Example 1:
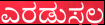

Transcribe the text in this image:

ಎರಡುಸಲ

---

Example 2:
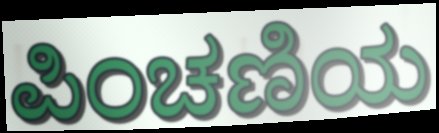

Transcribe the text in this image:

ಪಿಂಚಣಿಯ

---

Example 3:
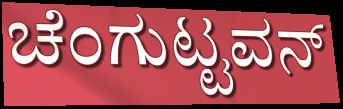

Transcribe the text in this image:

ಚೆಂಗುಟ್ಟವನ್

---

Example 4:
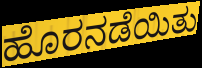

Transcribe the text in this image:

ಹೊರನಡೆಯಿತು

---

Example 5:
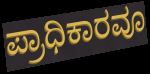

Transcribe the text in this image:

ಪ್ರಾಧಿಕಾರವೂ